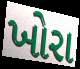
ખોરા